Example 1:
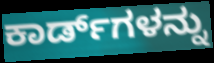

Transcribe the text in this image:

ಕಾರ್ಡ್‌ಗಳನ್ನು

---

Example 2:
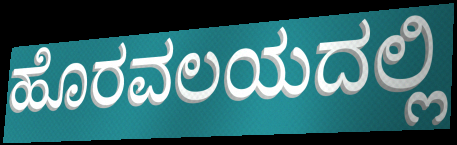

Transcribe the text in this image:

ಹೊರವಲಯದಲ್ಲಿ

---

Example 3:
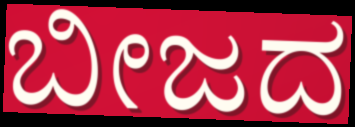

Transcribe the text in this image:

ಬೀಜದ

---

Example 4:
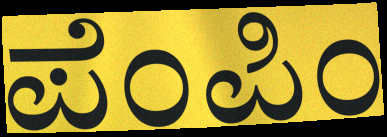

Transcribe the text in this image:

ಪೆಂಪಿಂ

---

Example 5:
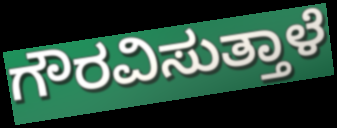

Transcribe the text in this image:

ಗೌರವಿಸುತ್ತಾಳೆ